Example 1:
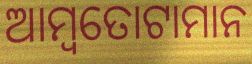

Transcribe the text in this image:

ଆମ୍ବତୋଟାମାନ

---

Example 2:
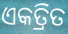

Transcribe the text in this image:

ଏକତ୍ରିତ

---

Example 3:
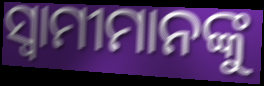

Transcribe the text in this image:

ସ୍ବାମୀମାନଙ୍କୁ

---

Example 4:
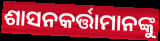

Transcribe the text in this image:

ଶାସନକର୍ତ୍ତାମାନଙ୍କୁ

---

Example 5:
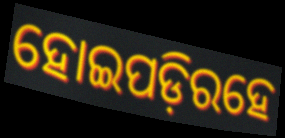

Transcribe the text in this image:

ହୋଇପଡ଼ିରହେ